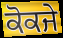
ਕੋਕਜੇ